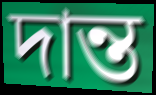
দান্ত